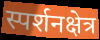
स्पर्शनक्षेत्र